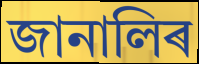
জানালিৰ